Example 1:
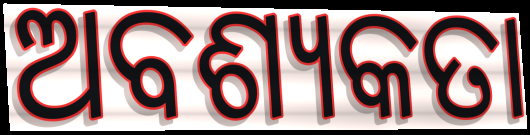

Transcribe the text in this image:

ଅବଶ୍ୟକତା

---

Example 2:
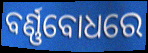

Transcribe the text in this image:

ବର୍ଣ୍ଣବୋଧରେ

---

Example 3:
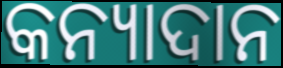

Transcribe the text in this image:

କନ୍ୟାଦାନ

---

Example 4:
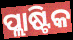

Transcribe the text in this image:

ପ୍ଲାଷ୍ଟିକ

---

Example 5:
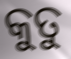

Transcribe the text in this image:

କୁତୁ